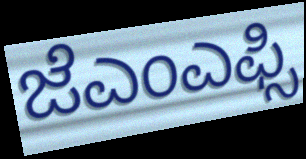
ಜೆಎಂಎಫ್ಸಿ